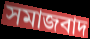
সমাজবাদ